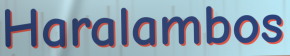
Haralambos